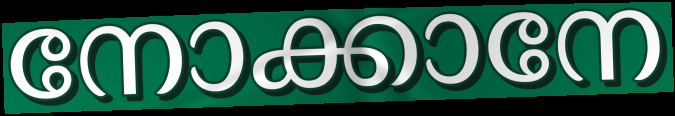
നോക്കാനേ